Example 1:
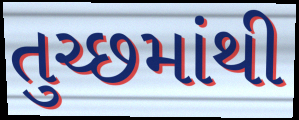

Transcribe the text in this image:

તુચ્છમાંથી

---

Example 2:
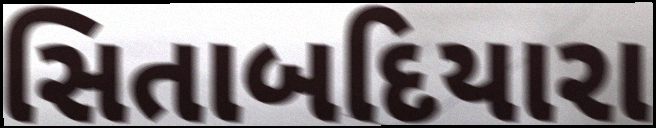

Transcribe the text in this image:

સિતાબદિયારા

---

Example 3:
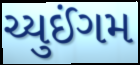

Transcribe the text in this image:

ચ્યુઈંગમ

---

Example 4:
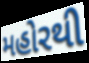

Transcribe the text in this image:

મહોરથી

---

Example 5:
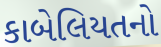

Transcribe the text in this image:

કાબેલિયતનો